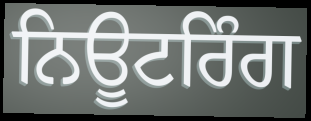
ਨਿਊਟਰਿੰਗ